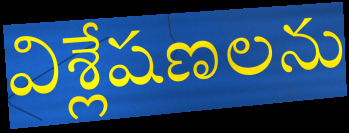
విశ్లేషణలను